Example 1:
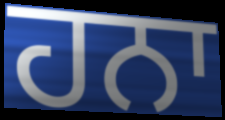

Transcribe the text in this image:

ਹਨਾ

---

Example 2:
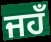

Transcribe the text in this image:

ਜਹਁ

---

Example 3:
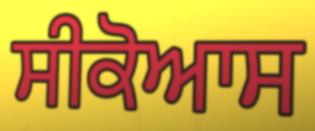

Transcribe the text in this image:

ਸੀਕੋਆਸ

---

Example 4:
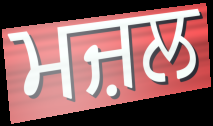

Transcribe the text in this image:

ਮਜ਼ਲ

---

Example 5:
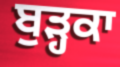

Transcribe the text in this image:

ਬੁੜ੍ਹਕਾ